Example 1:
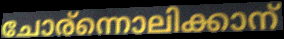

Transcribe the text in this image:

ചോര്ന്നൊലിക്കാന്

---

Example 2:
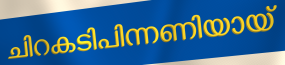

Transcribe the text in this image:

ചിറകടിപിന്നണിയായ്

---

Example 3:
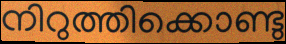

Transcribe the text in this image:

നിറുത്തിക്കൊണ്ടു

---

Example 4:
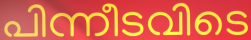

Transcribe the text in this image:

പിന്നീടവിടെ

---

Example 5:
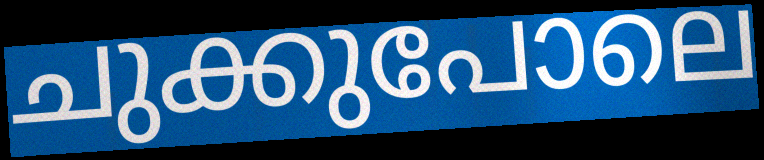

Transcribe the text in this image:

ചുക്കുപോലെ